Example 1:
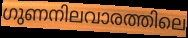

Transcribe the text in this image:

ഗുണനിലവാരത്തിലെ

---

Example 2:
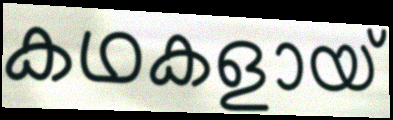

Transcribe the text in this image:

കഥകളായ്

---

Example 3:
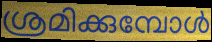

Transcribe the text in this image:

ശ്രമിക്കുമ്പോൾ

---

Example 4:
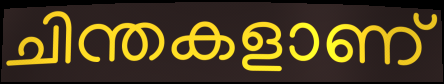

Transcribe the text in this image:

ചിന്തകളാണ്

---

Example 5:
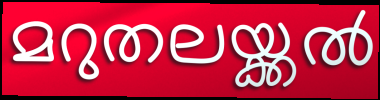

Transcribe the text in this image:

മറുതലയ്ക്കൽ